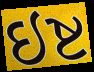
ઇષ્ટ